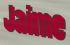
Jaime